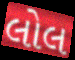
લોલ